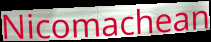
Nicomachean